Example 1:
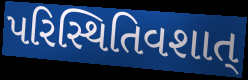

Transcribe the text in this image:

પરિસ્થિતિવશાત્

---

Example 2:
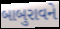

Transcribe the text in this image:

બાબુરાવને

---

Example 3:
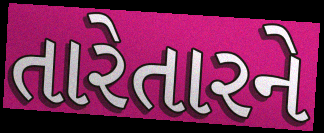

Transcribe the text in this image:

તારેતારને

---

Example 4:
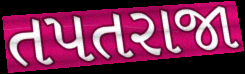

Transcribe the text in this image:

તપતરાજા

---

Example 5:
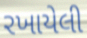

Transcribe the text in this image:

રખાયેલી